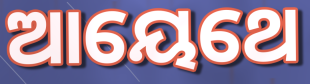
ଆୟେଥେ